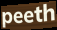
peeth